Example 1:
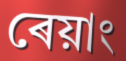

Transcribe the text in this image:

ৰেয়াং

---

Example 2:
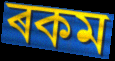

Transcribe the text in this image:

ৰকম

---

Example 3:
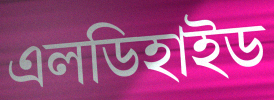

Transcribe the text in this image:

এলডিহাইড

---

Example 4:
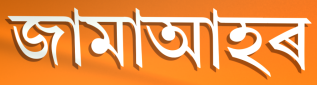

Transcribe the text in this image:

জামাআহৰ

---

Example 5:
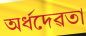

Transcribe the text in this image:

অৰ্ধদেৱতা